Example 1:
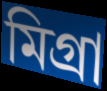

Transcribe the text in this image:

মিগ্রা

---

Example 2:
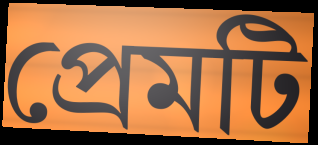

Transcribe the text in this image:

প্রেমটি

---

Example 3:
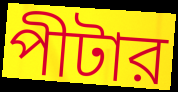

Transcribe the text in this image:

পীটার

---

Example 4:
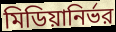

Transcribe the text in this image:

মিডিয়ানির্ভর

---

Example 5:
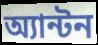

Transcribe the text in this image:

অ্যান্টন